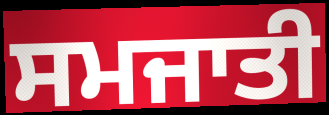
ਸਮਜਾਤੀ